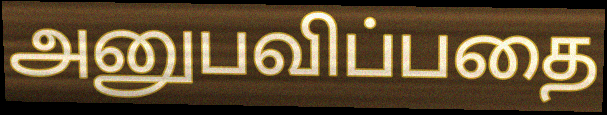
அனுபவிப்பதை